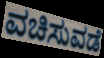
ವಚಿಸುವಡೆ